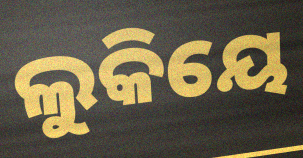
ଲୁକିୟେ